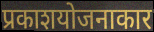
प्रकाशयोजनाकार